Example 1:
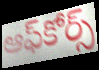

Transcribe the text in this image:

ఆఫ్‌కోర్స్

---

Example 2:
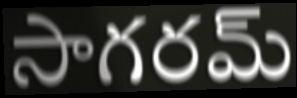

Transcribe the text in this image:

సాగరమ్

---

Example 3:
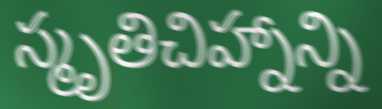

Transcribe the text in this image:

స్మృతిచిహ్నాన్ని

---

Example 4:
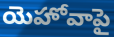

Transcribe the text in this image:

యెహోవాపై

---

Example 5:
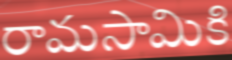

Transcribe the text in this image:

రామసామికి